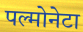
पल्मोनेटा